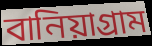
বানিয়াগ্রাম